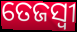
ତେଜସ୍ବୀ